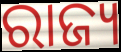
ରାଜ୍ୟ